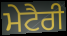
ਮੇਟੈਰੀ